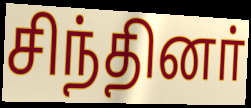
சிந்தினர்